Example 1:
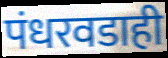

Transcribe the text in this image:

पंधरवडाही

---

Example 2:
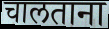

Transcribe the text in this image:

चालताना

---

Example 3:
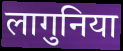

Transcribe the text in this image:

लागुनिया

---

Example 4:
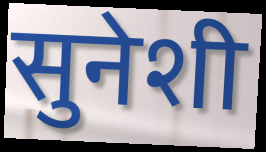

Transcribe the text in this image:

सुनेशी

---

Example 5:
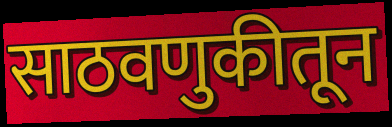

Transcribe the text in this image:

साठवणुकीतून